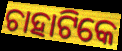
ଚାହାଟିକେ